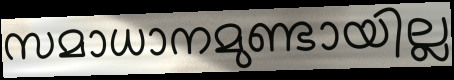
സമാധാനമുണ്ടായില്ല